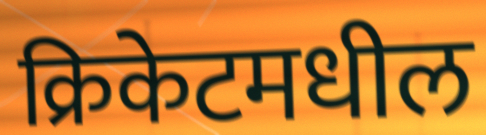
क्रिकेटमधील